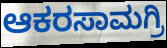
ಆಕರಸಾಮಗ್ರಿ